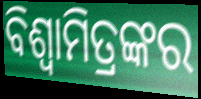
ବିଶ୍ବାମିତ୍ରଙ୍କର